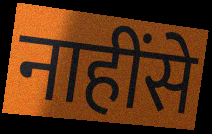
नाहींसे